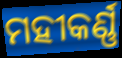
ମହୀକର୍ଣ୍ଣ